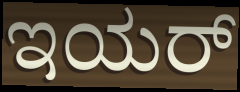
ಇಯರ್